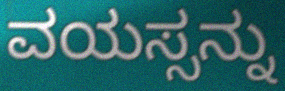
ವಯಸ್ಸನ್ನು